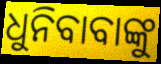
ଧୁନିବାବାଙ୍କୁ